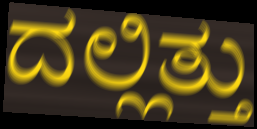
ದಲ್ಲಿತ್ತು